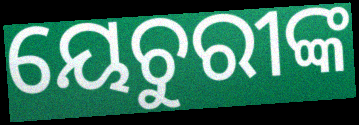
ୟେଚୁରୀଙ୍କ